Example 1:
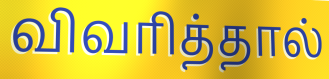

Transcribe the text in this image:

விவரித்தால்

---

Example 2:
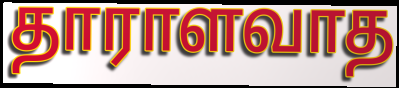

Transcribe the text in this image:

தாராளவாத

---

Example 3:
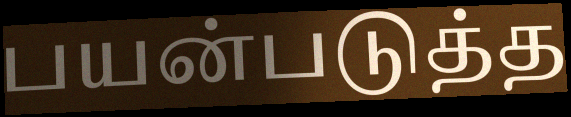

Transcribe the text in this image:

பயன்படுத்த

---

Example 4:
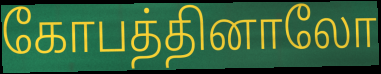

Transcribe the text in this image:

கோபத்தினாலோ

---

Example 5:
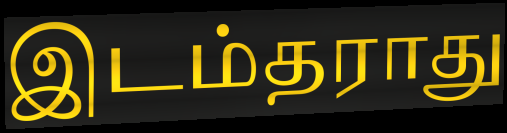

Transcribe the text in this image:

இடம்தராது